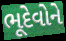
ભૂદેવોને